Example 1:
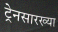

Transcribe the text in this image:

ट्रेनसारख्या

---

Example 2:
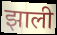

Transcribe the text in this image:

झाली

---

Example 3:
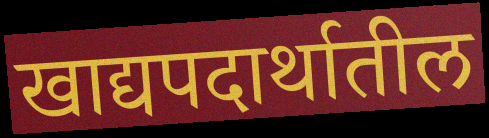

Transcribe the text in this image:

खाद्यपदार्थातील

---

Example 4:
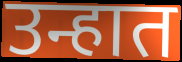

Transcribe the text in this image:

उन्हात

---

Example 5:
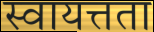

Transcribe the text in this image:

स्वायत्तता